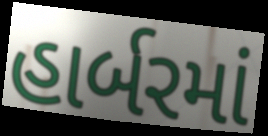
હાર્બરમાં